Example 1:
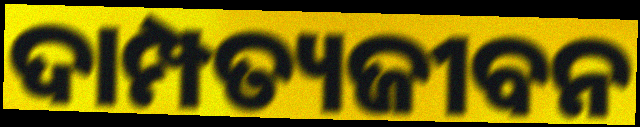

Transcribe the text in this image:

ଦାମ୍ପତ୍ୟଜୀବନ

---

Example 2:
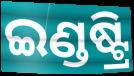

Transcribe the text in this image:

ଇଣ୍ଡଷ୍ଟ୍ରି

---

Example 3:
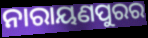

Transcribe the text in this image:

ନାରାୟଣପୁରର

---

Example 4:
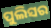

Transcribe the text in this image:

ପୁଲିସର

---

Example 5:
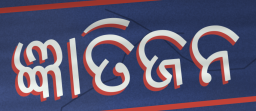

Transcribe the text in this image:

ଜ୍ଞାତିଜନ